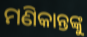
ମଣିକାନ୍ତଙ୍କୁ